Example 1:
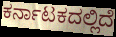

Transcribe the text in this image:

ಕರ್ನಾಟಕದಲ್ಲಿದೆ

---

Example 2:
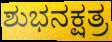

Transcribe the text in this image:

ಶುಭನಕ್ಷತ್ರ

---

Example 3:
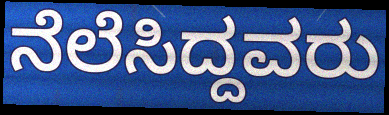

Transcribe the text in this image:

ನೆಲೆಸಿದ್ದವರು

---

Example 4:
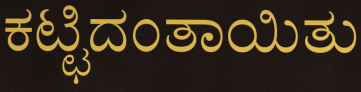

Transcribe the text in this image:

ಕಟ್ಟಿದಂತಾಯಿತು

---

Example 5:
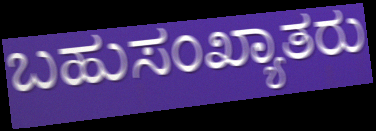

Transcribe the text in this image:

ಬಹುಸಂಖ್ಯಾತರು